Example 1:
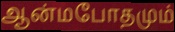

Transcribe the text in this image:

ஆன்மபோதமும்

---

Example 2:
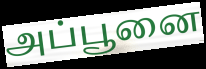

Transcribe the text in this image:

அப்பூனை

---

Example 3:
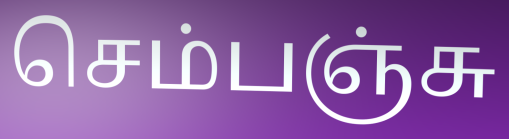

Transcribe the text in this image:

செம்பஞ்சு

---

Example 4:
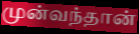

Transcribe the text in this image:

முன்வந்தான்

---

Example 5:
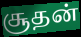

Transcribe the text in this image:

சூதன்